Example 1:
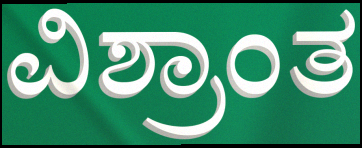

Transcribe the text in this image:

ವಿಶ್ರಾಂತ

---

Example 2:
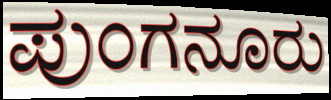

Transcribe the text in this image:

ಪುಂಗನೂರು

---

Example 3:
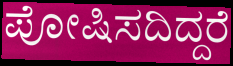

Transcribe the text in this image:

ಪೋಷಿಸದಿದ್ದರೆ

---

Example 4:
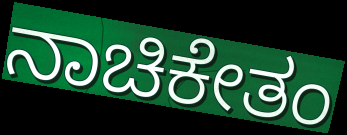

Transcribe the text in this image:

ನಾಚಿಕೇತಂ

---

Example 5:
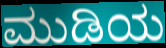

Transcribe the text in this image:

ಮುಡಿಯ